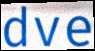
dve